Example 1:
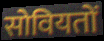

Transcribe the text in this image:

सोवियतों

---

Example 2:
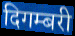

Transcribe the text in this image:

दिगम्बरी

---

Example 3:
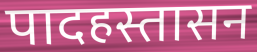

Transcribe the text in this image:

पादहस्तासन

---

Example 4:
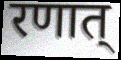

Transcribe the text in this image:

रणात्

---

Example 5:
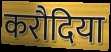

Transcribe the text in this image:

करौदिया